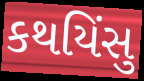
કથયિંસુ